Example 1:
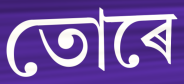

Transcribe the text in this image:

তোৰে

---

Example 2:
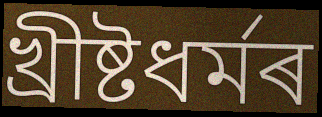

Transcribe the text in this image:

খ্ৰীষ্টধৰ্মৰ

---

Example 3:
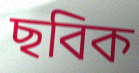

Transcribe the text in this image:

ছবিক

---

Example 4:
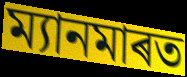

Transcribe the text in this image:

ম্যানমাৰত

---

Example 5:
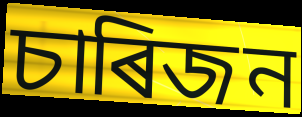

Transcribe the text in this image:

চাৰিজন